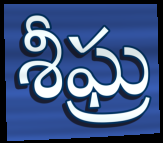
శీఘ్ర